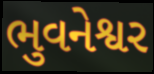
ભુવનેશ્વર